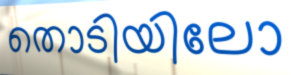
തൊടിയിലോ